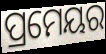
ପ୍ରମେୟର